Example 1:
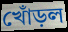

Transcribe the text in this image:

খোঁড়ল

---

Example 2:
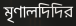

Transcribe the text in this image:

মৃণালদিদির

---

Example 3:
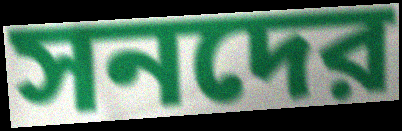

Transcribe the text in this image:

সনদের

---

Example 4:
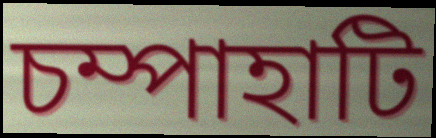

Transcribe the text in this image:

চম্পাহাটি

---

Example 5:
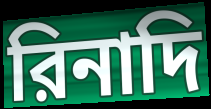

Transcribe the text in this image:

রিনাদি